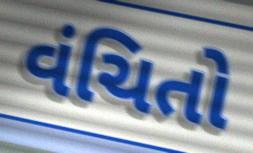
વંચિતો